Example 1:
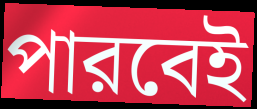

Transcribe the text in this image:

পারবেই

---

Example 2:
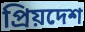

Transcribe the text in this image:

প্রিয়দেশ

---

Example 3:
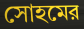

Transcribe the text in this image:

সোহমের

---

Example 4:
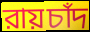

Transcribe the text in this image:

রায়চাঁদ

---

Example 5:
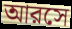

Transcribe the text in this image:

আরসে